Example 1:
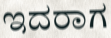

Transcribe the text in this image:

ಇದರಾಗ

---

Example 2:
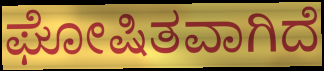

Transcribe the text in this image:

ಘೋಷಿತವಾಗಿದೆ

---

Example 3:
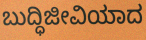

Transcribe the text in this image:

ಬುದ್ಧಿಜೀವಿಯಾದ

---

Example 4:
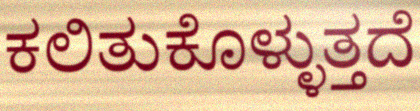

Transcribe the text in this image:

ಕಲಿತುಕೊಳ್ಳುತ್ತದೆ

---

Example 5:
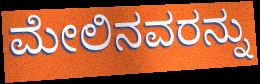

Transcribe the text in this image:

ಮೇಲಿನವರನ್ನು